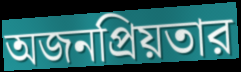
অজনপ্রিয়তার